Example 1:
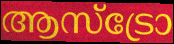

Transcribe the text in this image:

ആസ്ട്രോ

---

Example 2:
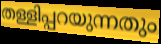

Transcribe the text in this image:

തള്ളിപ്പറയുന്നതും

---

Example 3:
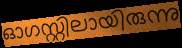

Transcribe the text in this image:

ഓഗസ്റ്റിലായിരുന്നു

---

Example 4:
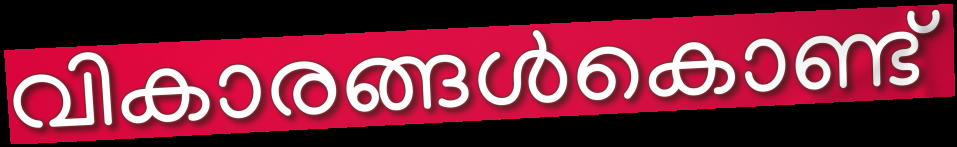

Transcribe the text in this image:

വികാരങ്ങൾകൊണ്ട്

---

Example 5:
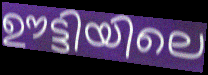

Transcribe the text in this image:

ഊട്ടിയിലെ